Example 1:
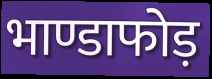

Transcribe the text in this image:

भाण्डाफोड़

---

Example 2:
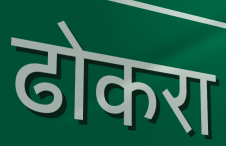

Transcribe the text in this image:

ढोकरा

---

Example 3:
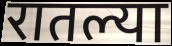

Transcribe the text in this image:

रातल्या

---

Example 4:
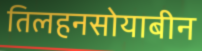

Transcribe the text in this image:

तिलहनसोयाबीन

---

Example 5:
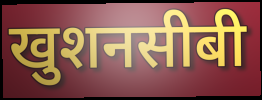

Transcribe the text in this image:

खुशनसीबी